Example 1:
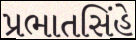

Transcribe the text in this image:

પ્રભાતસિંહે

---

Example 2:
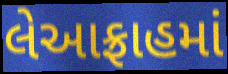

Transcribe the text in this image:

લેઆફ્રાહમાં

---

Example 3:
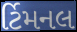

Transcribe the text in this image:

ર્ટિમનલ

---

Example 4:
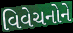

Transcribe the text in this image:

વિવેચનોને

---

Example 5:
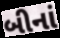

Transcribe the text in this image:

બીનાં